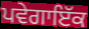
ਪਵੇਗਾਇੱਕ